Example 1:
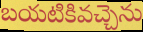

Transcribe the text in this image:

బయటికివచ్చెను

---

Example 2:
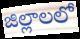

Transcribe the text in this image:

జిల్లాలలో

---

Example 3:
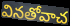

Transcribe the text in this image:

వినతోవాచ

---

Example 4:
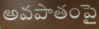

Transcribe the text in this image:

అవపాతంపై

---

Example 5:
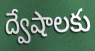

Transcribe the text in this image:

ద్వేషాలకు